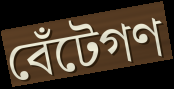
বেঁটেগণ